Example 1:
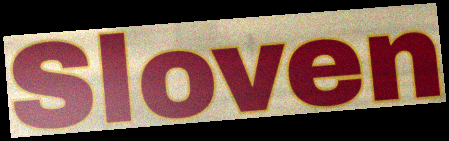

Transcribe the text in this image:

Sloven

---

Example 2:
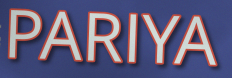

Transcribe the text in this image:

PARIYA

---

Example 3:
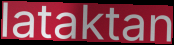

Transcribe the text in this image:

lataktan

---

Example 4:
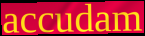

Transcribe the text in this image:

accudam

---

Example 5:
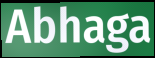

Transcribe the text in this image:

Abhaga